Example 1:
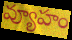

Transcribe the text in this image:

వ్యూహం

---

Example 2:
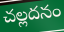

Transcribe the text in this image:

చల్లదనం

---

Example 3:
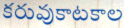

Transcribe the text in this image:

కరువుకాటకాల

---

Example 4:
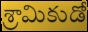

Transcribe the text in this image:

శ్రామికుడో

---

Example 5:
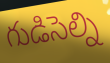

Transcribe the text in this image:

గుడిసెల్ని